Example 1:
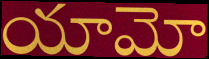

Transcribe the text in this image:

యామో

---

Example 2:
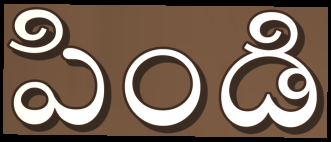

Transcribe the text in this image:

పిండి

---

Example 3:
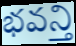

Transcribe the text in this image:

భవన్తి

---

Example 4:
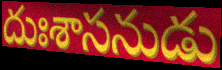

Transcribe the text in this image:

దుఃశాసనుడు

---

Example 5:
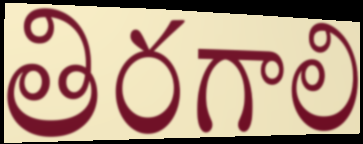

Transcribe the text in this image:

తిరగాలి